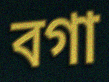
বগা